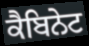
ਕੈਬਿਨੇਟ